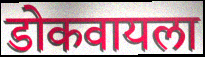
डोकवायला